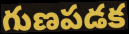
గుణపడక